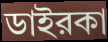
ডাইরকা